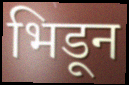
भिडून